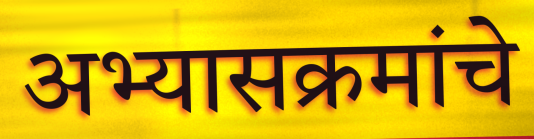
अभ्यासक्रमांचे